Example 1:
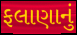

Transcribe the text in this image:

ફલાણાનું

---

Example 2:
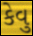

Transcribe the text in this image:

કેવુ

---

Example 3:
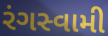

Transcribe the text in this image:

રંગસ્વામી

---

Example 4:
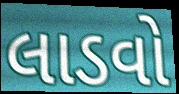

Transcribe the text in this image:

લાડવો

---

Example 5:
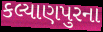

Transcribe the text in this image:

કલ્યાણપુરના